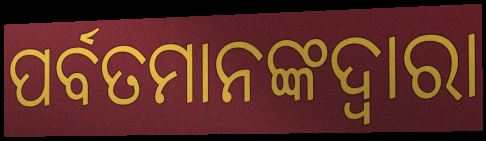
ପର୍ବତମାନଙ୍କଦ୍ଵାରା